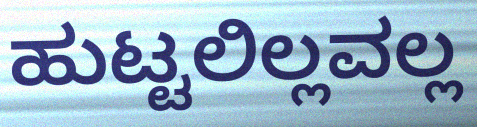
ಹುಟ್ಟಲಿಲ್ಲವಲ್ಲ